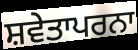
ਸ਼ਵੇਤਾਪਰਨਾ